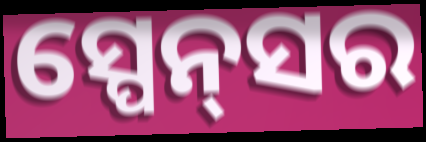
ସ୍ପେନ୍‌ସର